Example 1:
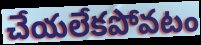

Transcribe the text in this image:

చేయలేకపోవటం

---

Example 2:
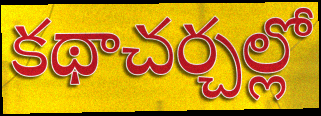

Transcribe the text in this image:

కథాచర్చల్లో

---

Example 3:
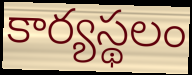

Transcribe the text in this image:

కార్యస్థలం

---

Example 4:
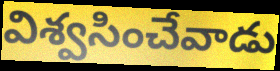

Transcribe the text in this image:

విశ్వసించేవాడు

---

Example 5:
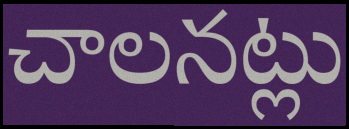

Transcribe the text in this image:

చాలనట్లు